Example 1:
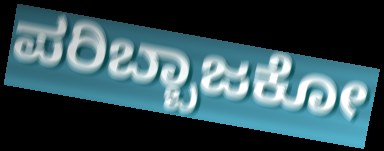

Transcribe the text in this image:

ಪರಿಬ್ಬಾಜಕೋ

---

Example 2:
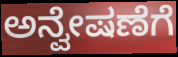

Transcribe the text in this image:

ಅನ್ವೇಷಣೆಗೆ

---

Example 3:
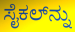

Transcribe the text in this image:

ಸೈಕಲ್‌ನ್ನು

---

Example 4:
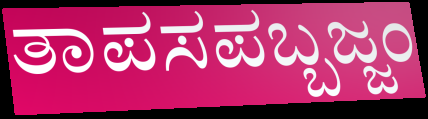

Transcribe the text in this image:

ತಾಪಸಪಬ್ಬಜ್ಜಂ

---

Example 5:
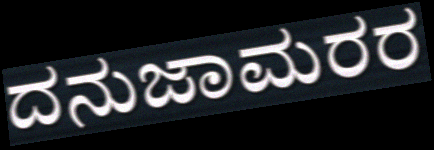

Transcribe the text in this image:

ದನುಜಾಮರರ